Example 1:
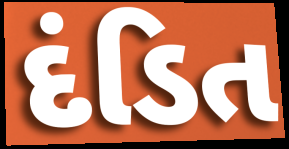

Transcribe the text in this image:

દંડિત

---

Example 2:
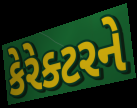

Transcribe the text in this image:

કેરેક્ટરને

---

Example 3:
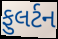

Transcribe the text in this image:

ફુલર્ટન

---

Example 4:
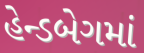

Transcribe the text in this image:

હેન્ડબેગમાં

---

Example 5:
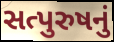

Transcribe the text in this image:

સત્પુરુષનું